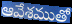
ఆవేశముతో